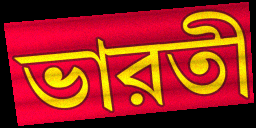
ভারতী